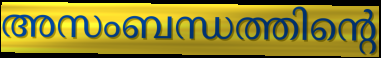
അസംബന്ധത്തിന്റെ